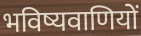
भविष्यवाणियों